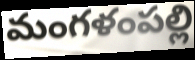
మంగళంపల్లి